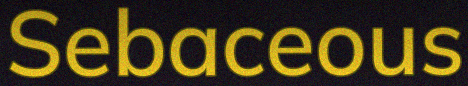
Sebaceous